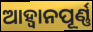
ଆହ୍ବାନପୂର୍ଣ୍ଣ